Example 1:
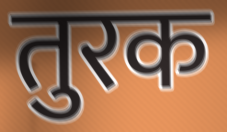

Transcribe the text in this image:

तुरक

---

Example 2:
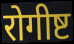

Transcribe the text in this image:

रोगीष्ट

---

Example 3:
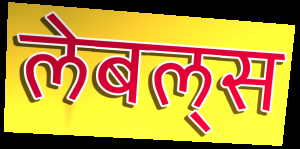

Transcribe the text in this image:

लेबल्स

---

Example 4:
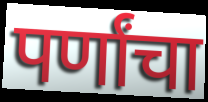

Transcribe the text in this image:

पर्णांचा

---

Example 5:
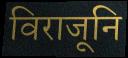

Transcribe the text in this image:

विराजूनि